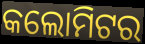
କଲୋମିଟର